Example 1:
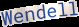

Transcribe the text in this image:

Wendell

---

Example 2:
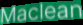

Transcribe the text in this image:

Maclean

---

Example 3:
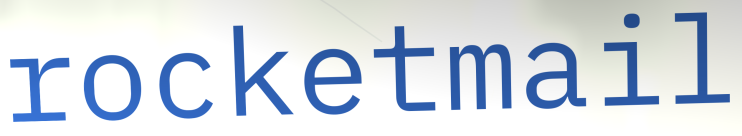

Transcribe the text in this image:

rocketmail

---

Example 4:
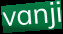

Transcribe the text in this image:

vanji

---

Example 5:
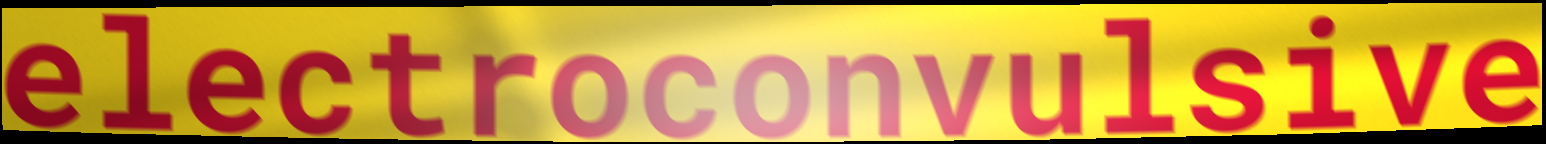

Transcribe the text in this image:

electroconvulsive